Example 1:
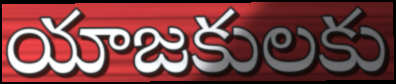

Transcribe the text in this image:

యాజకులకు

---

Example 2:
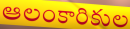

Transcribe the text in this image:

ఆలంకారికుల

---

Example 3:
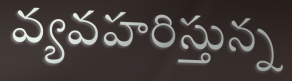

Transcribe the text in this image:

వ్యవహరిస్తున్న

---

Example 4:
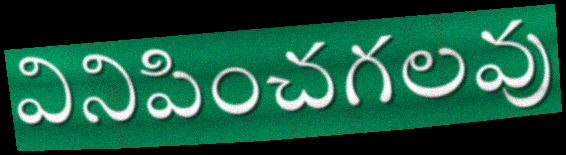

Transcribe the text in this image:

వినిపించగలవు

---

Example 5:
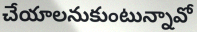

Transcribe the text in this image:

చేయాలనుకుంటున్నావో